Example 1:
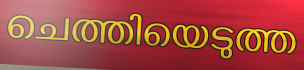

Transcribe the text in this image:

ചെത്തിയെടുത്ത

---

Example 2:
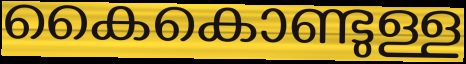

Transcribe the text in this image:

കൈകൊണ്ടുള്ള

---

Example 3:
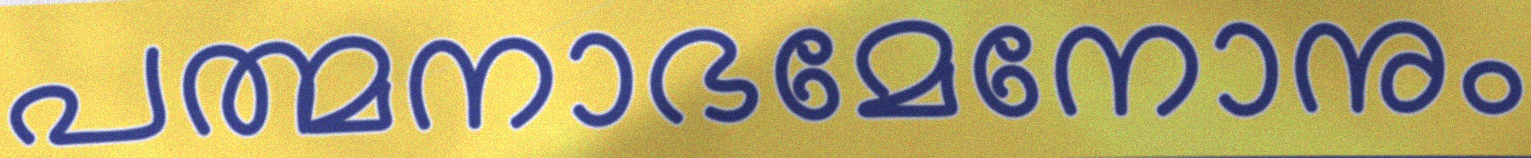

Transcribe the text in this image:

പത്മനാഭമേനോനും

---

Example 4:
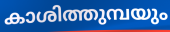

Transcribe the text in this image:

കാശിത്തുമ്പയും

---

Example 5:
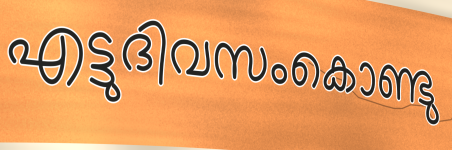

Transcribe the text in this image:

എട്ടുദിവസംകൊണ്ടു